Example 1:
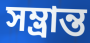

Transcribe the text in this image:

সম্ভ্রান্ত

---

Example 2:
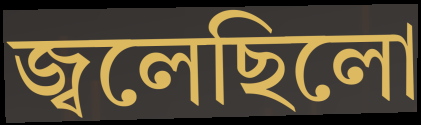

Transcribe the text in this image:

জ্বলেছিলো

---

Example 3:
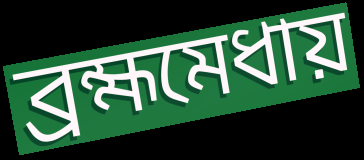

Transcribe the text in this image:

ব্রহ্মমেধায়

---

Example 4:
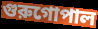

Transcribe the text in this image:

গুরুগোপাল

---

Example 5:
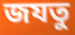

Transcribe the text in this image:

জযতু